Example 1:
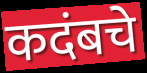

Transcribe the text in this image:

कदंबचे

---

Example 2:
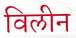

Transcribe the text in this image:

विलीन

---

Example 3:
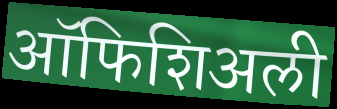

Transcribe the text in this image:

ऑफिशिअली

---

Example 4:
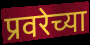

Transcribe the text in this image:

प्रवरेच्या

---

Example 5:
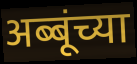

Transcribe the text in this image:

अब्बूंच्या